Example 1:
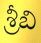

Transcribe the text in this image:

శ్రీబి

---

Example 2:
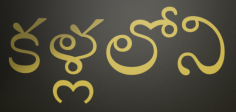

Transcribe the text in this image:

కళ్లలోని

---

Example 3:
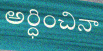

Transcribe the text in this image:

అర్ధించినా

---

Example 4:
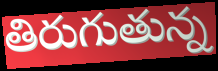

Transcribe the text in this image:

తిరుగుతున్న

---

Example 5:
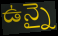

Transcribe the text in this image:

ఉన్నై